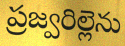
ప్రజ్వరిల్లెను